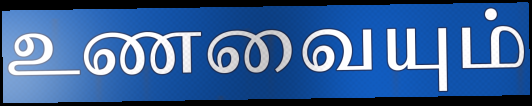
உணவையும்